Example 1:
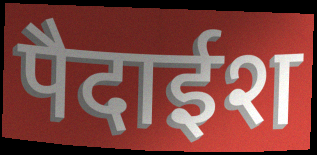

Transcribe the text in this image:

पैदाईश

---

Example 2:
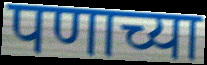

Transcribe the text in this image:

पणाच्या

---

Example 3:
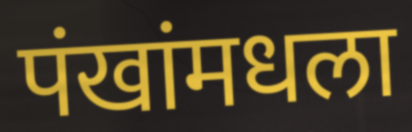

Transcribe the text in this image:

पंखांमधला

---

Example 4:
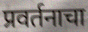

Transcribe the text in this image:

प्रवर्तनाचा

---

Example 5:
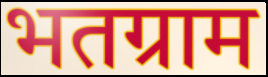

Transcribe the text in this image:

भतग्राम